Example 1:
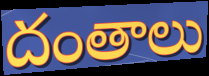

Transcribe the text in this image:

దంతాలు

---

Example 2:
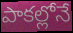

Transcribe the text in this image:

పాకల్లోనే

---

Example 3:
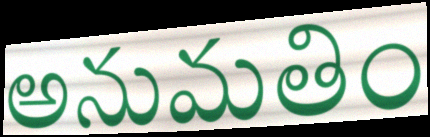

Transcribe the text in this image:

అనుమతిం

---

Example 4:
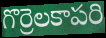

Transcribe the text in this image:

గొర్రెలకాపరి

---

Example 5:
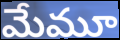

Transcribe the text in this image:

మేమూ